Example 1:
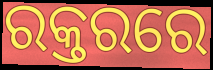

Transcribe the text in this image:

ରକ୍ତରରେ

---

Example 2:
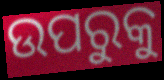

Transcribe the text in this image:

ଉପରୁକୁ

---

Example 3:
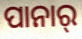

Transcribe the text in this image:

ପାନାର୍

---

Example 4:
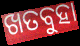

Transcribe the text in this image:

ଖତବୁହା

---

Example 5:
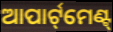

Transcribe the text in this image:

ଆପାର୍ଟ୍‌ମେଣ୍ଟ୍